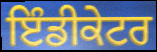
ਇੰਡੀਕੇਟਰ